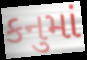
કનુમાં